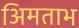
अिमताभ